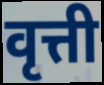
वृत्ती